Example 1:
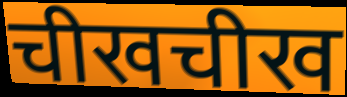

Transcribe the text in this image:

चीखचीख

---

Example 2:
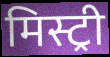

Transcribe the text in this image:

मिस्ट्री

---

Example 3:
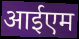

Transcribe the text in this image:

आईएम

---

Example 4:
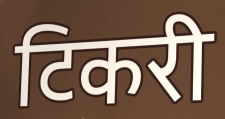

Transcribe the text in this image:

टिकरी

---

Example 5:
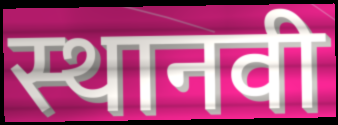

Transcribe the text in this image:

स्थानवी